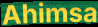
Ahimsa